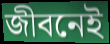
জীবনেই